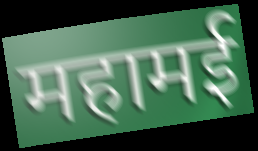
महामई